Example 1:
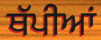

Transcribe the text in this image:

ਥੱਪੀਆਂ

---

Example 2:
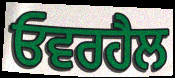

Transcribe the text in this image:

ਓਵਰਹੈਲ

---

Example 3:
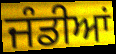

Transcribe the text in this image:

ਜੰਡੀਆਂ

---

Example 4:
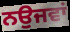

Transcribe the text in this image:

ਨਉਜਵਾਂ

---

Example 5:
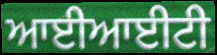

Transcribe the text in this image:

ਆਈਆਈਟੀ